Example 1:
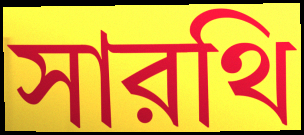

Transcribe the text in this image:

সারথি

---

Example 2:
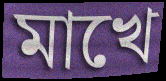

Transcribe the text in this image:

মাখে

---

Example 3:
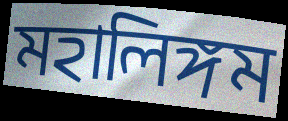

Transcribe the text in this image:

মহালিঙ্গম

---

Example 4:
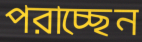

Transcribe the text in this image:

পরাচ্ছেন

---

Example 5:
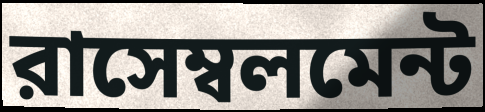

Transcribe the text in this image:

রাসেম্বলমেন্ট